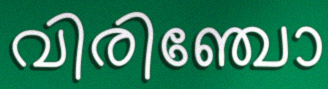
വിരിഞ്ചോ